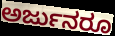
ಅರ್ಜುನರೂ